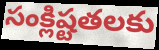
సంక్లిష్టతలకు